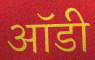
ऑडी